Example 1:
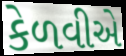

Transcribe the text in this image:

કેળવીએ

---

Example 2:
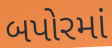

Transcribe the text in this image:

બપોરમાં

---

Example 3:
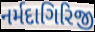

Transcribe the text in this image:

નર્મદાગિરિજી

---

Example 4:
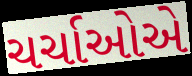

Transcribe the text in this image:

ચર્ચાઓએ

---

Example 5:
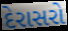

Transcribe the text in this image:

દેરાસરો